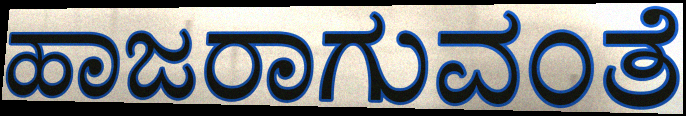
ಹಾಜರಾಗುವಂತೆ